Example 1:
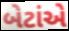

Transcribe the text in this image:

બેટાંએ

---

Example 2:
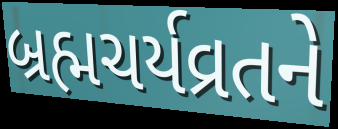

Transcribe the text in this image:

બ્રહ્મચર્યવ્રતને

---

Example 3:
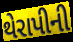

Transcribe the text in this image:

થેરાપીની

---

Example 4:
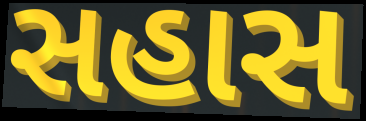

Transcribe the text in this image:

સહાસ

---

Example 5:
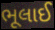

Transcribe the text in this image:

ભૂલાઈ